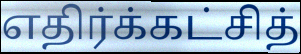
எதிர்க்கட்சித்